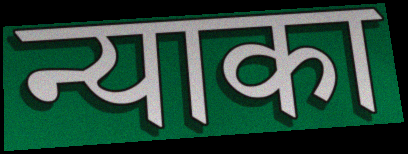
न्याका